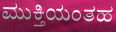
ಮುಕ್ತಿಯಂತಹ